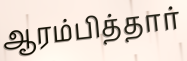
ஆரம்பித்தார்